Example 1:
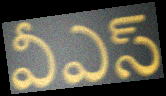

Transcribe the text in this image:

వీఎస్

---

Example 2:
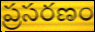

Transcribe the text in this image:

ప్రసరణం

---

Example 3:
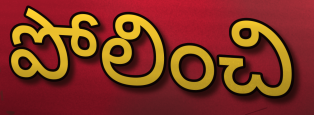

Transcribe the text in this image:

పోలించి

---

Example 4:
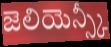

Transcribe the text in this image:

జెలియెన్స్కీ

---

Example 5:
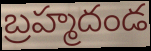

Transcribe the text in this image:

బ్రహ్మదండ